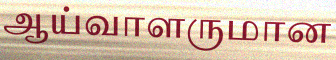
ஆய்வாளருமான